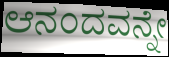
ಆನಂದವನ್ನೇ